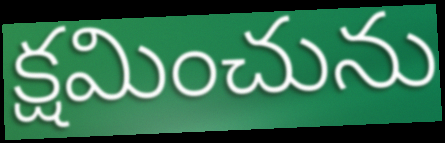
క్షమించును